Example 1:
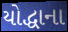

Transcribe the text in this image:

યોદ્ધાના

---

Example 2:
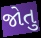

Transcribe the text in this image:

જોતુ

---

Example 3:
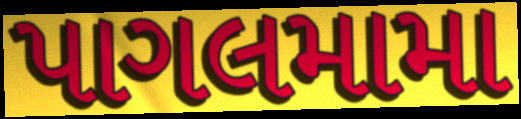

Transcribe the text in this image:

પાગલમામા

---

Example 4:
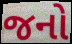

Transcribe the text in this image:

જનો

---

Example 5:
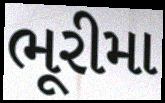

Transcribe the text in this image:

ભૂરીમા